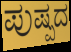
ಪುಷ್ಪದ